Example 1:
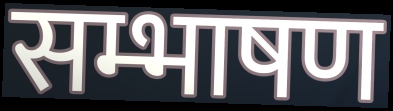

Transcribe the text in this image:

सम्भाषण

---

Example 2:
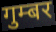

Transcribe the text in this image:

गुम्बर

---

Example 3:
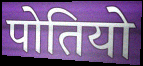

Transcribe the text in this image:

पोतियो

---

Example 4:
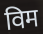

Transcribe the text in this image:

विम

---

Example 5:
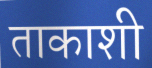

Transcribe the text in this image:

ताकाशी